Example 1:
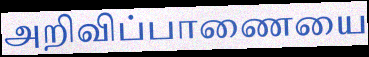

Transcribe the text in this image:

அறிவிப்பாணையை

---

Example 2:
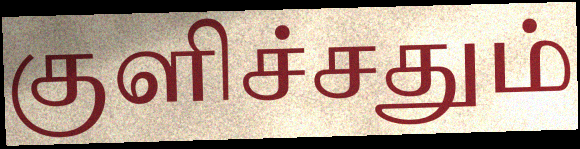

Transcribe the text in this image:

குளிச்சதும்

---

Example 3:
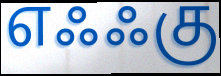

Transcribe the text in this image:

எஃஃகு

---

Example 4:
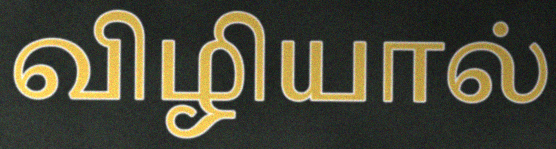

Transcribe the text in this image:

விழியால்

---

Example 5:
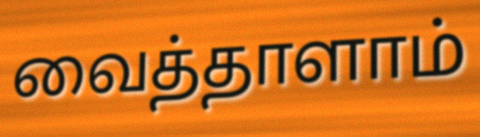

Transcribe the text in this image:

வைத்தாளாம்